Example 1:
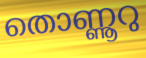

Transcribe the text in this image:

തൊണ്ണൂറു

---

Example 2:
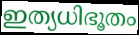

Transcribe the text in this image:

ഇത്യധിഭൂതം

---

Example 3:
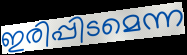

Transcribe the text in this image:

ഇരിപ്പിടമെന്ന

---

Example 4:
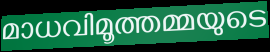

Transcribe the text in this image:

മാധവിമൂത്തമ്മയുടെ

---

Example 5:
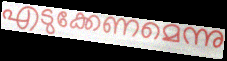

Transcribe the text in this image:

എടുക്കേണമെന്നു